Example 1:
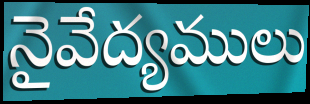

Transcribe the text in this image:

నైవేద్యములు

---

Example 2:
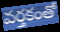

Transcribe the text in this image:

వర్తకంతో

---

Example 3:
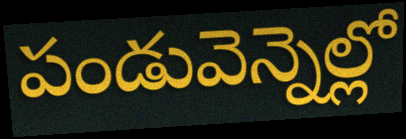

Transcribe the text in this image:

పండువెన్నెల్లో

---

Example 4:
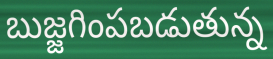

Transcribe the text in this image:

బుజ్జగింపబడుతున్న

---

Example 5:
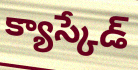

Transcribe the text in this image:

క్యాస్కేడ్